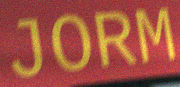
JORM